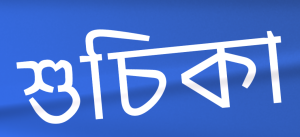
শুচিকা